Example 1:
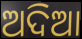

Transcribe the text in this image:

ଅଦିଆ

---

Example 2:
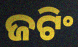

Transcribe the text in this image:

ଜଟିଂ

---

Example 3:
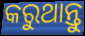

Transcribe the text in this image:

କରୁଥାନ୍ତୁ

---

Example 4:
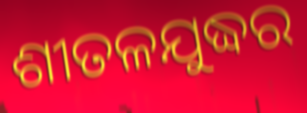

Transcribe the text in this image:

ଶୀତଳଯୁଦ୍ଧର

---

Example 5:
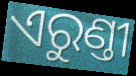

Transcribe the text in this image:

ଏରୁଣ୍ତୀ